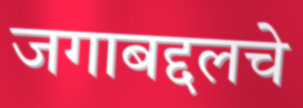
जगाबद्दलचे